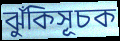
ঝুঁকিসূচক